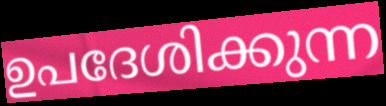
ഉപദേശിക്കുന്ന